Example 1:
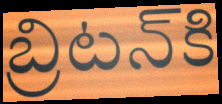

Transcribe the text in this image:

బ్రిటన్‌కి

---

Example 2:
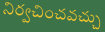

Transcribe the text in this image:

నిర్వచించవచ్చు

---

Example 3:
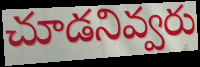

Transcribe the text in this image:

చూడనివ్వరు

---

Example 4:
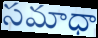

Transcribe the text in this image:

సమాధా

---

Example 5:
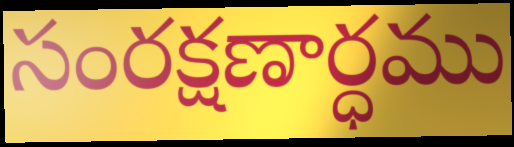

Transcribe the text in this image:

సంరక్షణార్ధము